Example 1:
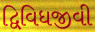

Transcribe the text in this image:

દ્વિવિધજીવી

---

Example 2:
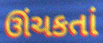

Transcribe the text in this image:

ઊંચકતાં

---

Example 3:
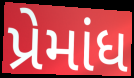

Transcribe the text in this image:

પ્રેમાંધ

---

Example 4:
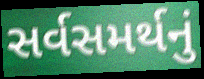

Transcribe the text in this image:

સર્વસમર્થનું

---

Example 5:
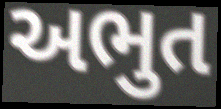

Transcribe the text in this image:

અભુત